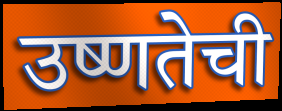
उष्णतेची